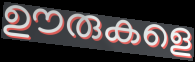
ഊരുകളെ